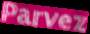
Parvez